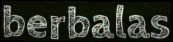
berbalas